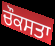
ਚੌਕਸਤਾ